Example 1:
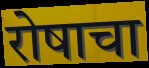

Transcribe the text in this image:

रोषाचा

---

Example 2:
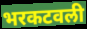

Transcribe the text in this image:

भरकटवली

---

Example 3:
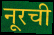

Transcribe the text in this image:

नूरची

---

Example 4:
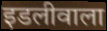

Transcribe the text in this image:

इडलीवाला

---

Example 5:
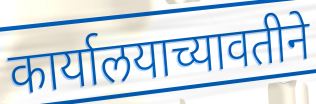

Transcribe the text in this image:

कार्यालयाच्यावतीने